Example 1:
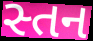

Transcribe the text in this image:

સ્તન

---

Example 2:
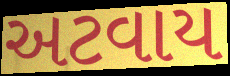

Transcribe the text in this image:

અટવાય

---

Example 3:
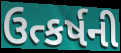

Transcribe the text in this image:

ઉત્કર્ષની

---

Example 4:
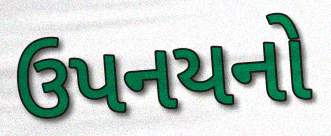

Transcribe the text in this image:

ઉપનયનો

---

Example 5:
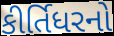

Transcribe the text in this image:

કીર્તિધરનો